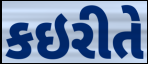
કઇરીતે